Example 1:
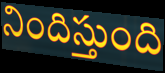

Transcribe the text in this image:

నిందిస్తుంది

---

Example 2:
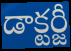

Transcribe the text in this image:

డాక్టర్జీ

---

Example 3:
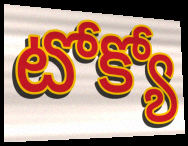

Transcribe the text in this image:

టోక్యో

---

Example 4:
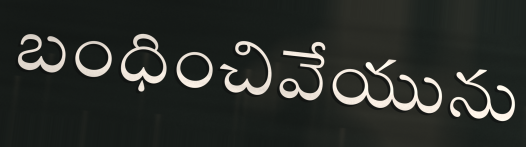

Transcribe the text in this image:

బంధించివేయును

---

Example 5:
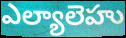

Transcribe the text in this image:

ఎల్యాలెహు